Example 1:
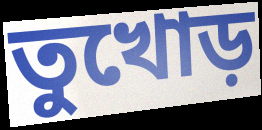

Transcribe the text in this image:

তুখোড়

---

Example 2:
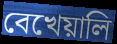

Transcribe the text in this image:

বেখেয়ালি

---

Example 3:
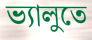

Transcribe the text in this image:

ভ্যালুতে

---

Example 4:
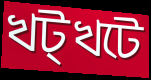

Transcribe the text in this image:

খট্‌খটে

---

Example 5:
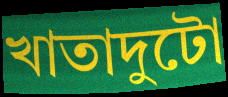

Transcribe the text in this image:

খাতাদুটো